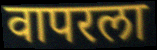
वापरला